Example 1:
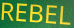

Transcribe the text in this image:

REBEL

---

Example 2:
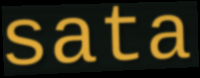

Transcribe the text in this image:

sata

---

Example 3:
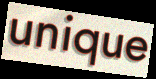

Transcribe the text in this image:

unique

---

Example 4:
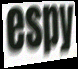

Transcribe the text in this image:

espy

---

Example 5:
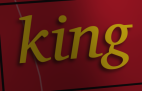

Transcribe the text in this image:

king